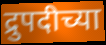
द्रुपदीच्या